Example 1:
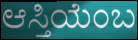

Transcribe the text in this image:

ಆಸ್ತಿಯೆಂಬ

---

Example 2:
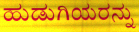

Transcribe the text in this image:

ಹುಡುಗಿಯರನ್ನು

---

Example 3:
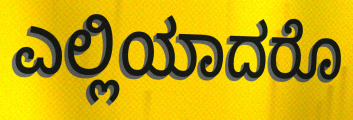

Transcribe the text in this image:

ಎಲ್ಲಿಯಾದರೊ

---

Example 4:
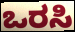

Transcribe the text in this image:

ಒರಸಿ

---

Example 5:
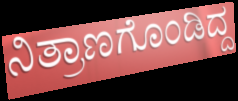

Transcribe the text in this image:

ನಿತ್ರಾಣಗೊಂಡಿದ್ದ